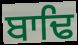
ਬਾਢਿ